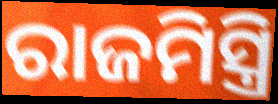
ରାଜମିସ୍ତ୍ରି